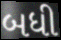
બધી